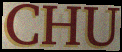
CHU